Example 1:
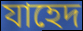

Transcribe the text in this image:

যাহেদ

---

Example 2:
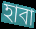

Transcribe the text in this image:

হাবা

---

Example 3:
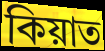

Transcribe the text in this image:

কিয়াত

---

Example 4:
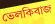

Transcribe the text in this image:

ভেলকিবাজ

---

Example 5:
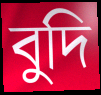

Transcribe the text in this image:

বুদি